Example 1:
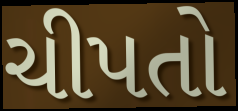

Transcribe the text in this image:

ચીપતો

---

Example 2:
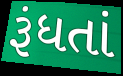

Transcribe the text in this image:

રૂંધતાં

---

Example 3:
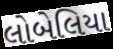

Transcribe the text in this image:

લોબેલિયા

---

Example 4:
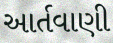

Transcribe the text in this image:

આર્તવાણી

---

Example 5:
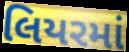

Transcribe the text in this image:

લિયરમાં